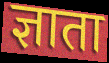
ज्ञाता